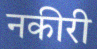
नकीरी